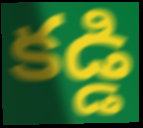
కడ్డి